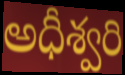
అధీశ్వరి